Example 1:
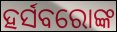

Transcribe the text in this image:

ହର୍ସବରୋଙ୍କ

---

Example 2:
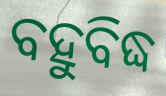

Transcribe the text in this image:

ବହୁବିଦ୍ଧ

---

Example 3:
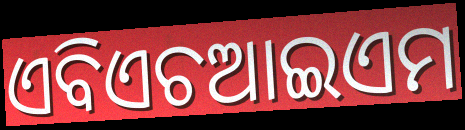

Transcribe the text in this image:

ଏବିଏଚଆଇଏମ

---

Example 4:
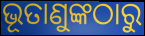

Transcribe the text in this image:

ଭୂତାଣୁଙ୍କଠାରୁ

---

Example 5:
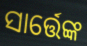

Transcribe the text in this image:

ସାର୍ତ୍ତେଙ୍କ